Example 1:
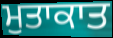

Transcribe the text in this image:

ਮੁਤਾਕਾਤ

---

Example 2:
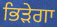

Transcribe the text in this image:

ਭਿੜੇਗਾ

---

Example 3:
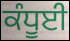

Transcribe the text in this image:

ਕੰਧੂਈ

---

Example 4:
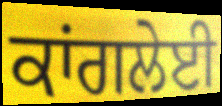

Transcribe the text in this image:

ਕਾਂਗਲੇਈ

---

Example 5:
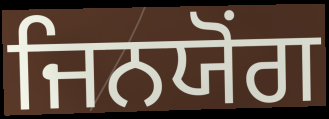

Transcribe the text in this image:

ਜਿਨਯੋਂਗ